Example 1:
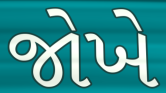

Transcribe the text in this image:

જોખે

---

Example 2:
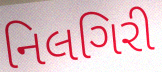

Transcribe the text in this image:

નિલગિરી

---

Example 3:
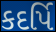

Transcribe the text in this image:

કદર્પિ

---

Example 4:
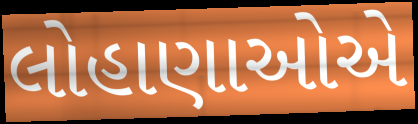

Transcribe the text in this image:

લોહાણાઓએ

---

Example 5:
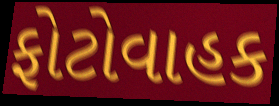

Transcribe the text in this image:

ફોટોવાહક